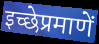
इच्छेप्रमाणें